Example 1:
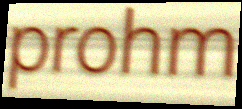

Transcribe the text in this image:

prohm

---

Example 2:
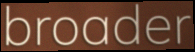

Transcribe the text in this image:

broader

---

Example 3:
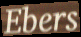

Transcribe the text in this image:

Ebers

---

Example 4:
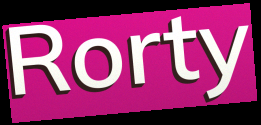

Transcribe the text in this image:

Rorty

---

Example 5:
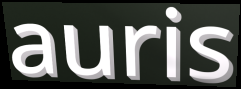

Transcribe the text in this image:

auris